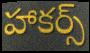
హాకర్స్